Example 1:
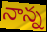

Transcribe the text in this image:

నాన్న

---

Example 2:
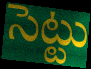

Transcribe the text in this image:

సెట్టు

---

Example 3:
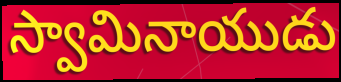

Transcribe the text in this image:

స్వామినాయుడు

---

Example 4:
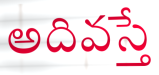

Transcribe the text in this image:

అదివస్తే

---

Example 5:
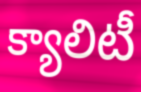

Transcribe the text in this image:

క్యాలిటీ